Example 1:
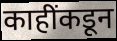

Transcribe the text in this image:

काहींकडून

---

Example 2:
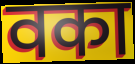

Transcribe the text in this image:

वका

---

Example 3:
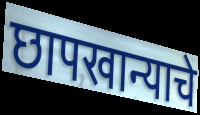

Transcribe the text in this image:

छापखान्याचे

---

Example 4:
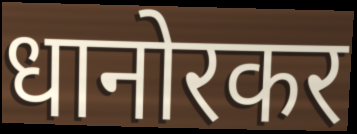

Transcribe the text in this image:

धानोरकर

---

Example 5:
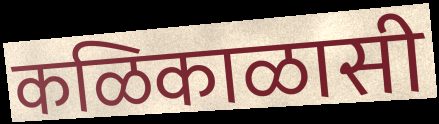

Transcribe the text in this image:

कळिकाळासी